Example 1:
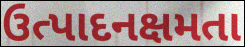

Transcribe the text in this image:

ઉત્પાદનક્ષમતા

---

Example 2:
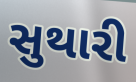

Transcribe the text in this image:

સુથારી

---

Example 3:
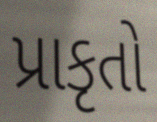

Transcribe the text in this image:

પ્રાકૃતો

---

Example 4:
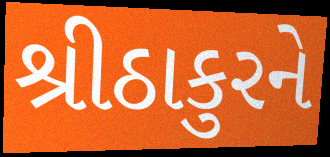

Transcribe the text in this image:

શ્રીઠાકુરને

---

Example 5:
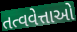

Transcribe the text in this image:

તત્વવેત્તાઓ